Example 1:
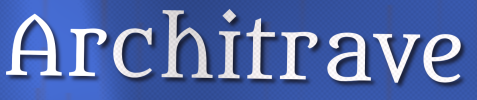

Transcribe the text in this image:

Architrave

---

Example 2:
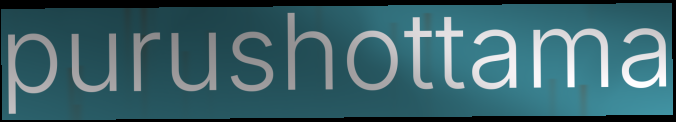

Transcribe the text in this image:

purushottama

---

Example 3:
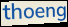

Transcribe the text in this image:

thoeng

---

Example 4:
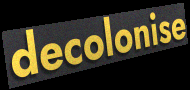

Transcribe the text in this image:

decolonise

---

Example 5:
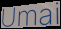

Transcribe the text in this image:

Umai